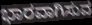
ಭಾರವಾಗಿಸುವ